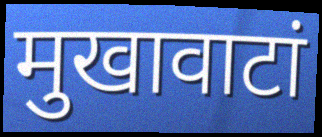
मुखावाटां